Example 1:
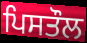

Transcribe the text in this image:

ਪਿਸਤੌਲ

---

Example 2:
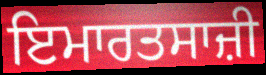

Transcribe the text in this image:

ਇਮਾਰਤਸਾਜ਼ੀ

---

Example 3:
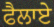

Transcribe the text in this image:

ਫੈਲਾਏ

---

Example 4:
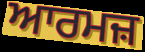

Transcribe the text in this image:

ਆਰਮਜ਼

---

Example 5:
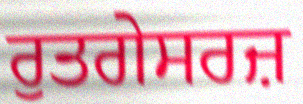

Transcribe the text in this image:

ਰੁਤਗੇਸਰਜ਼